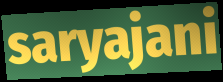
saryajani